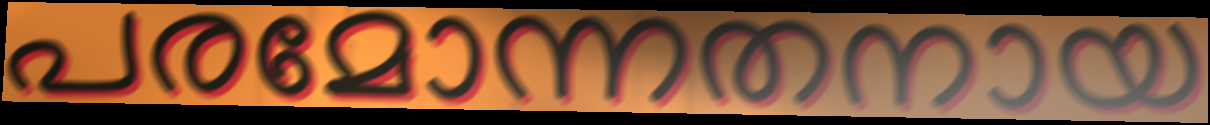
പരമോന്നതനായ